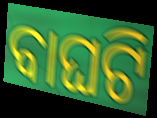
ବାଘଟି